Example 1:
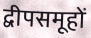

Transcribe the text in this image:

द्वीपसमूहों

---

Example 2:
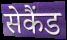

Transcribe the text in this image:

सेकैंड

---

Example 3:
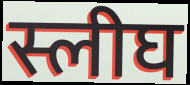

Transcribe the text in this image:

स्लीघ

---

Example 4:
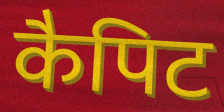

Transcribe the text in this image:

कैपिट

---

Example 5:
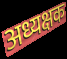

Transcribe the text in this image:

अध्यक्षक